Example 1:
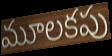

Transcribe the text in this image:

మూలకపు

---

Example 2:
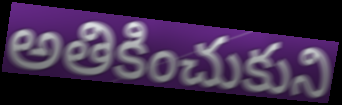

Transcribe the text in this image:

అతికించుకుని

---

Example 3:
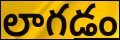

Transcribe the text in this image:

లాగడం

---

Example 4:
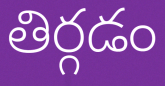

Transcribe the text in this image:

తిర్గడం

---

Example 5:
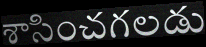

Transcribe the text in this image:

శాసించగలడు